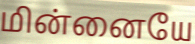
மின்னையே